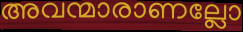
അവന്മാരാണല്ലോ